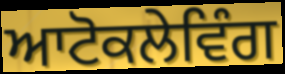
ਆਟੋਕਲੇਵਿੰਗ